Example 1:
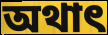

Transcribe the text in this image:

অথাৎ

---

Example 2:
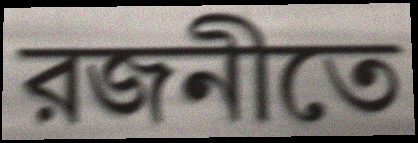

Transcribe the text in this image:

রজনীতে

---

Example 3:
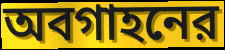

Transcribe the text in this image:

অবগাহনের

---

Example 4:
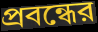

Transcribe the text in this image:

প্রবন্ধের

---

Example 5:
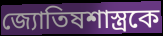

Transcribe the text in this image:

জ্যোতিষশাস্ত্রকে